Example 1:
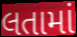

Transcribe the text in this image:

લતામાં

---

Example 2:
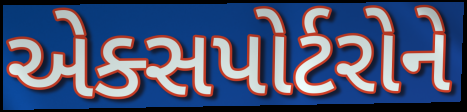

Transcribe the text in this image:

એક્સપોર્ટરોને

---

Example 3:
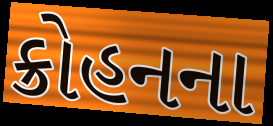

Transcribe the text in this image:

ક્રોહનના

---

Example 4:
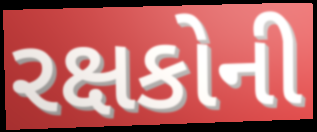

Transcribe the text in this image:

રક્ષકોની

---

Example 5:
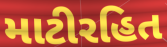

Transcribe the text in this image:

માટીરહિત